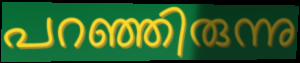
പറഞ്ഞിരുന്നു